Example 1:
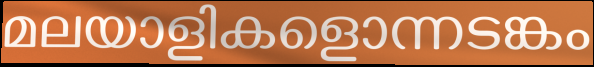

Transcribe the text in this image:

മലയാളികളൊന്നടങ്കം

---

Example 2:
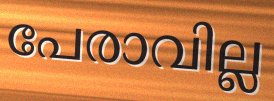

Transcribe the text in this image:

പേരാവില്ല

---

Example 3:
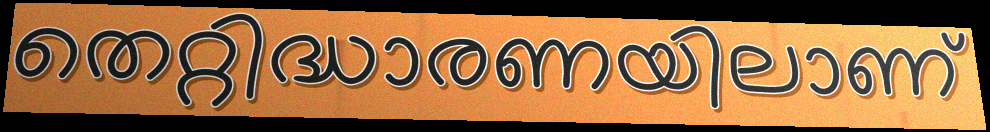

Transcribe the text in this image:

തെറ്റിദ്ധാരണയിലാണ്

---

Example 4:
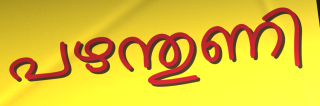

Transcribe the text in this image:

പഴന്തുണി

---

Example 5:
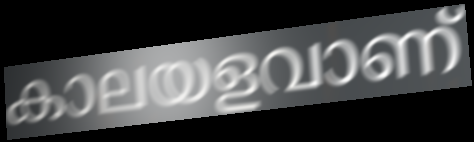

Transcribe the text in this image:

കാലയളവാണ്